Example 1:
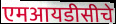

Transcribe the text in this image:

एमआयडीसीचे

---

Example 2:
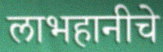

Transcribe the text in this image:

लाभहानीचे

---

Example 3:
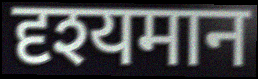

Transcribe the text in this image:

दृश्यमान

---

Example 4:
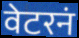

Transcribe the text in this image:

वेटरनं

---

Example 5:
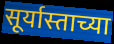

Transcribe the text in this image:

सूर्यास्ताच्या